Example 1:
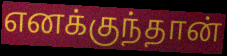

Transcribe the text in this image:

எனக்குந்தான்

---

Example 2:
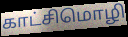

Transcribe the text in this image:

காட்சிமொழி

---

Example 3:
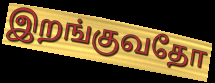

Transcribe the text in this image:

இறங்குவதோ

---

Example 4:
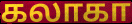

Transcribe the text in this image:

கலாகா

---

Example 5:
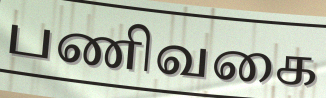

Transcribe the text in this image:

பணிவகை